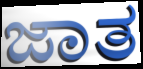
ಜಾತ